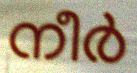
നീർ